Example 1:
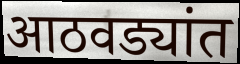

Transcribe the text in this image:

आठवड्यांत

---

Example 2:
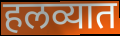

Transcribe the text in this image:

हलव्यात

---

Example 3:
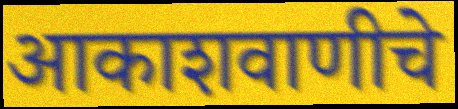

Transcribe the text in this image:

आकाशवाणीचे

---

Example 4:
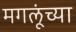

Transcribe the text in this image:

मगलूंच्या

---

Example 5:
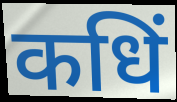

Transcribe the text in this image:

कधिं